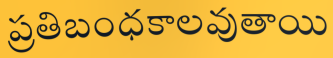
ప్రతిబంధకాలవుతాయి